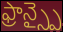
ఫ్రాన్స్పై